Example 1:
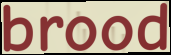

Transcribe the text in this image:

brood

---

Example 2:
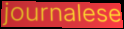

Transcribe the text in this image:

journalese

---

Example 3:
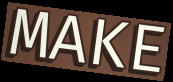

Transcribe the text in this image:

MAKE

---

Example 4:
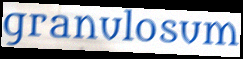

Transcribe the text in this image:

granulosum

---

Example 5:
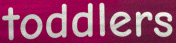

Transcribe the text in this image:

toddlers